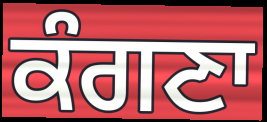
ਕੰਗਣਾ